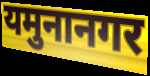
यमुनानगर